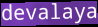
devalaya